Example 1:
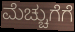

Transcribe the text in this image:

ಮೆಚ್ಚುಗೆಗೆ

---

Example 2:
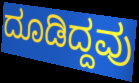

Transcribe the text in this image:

ದೂಡಿದ್ದವು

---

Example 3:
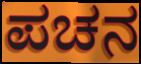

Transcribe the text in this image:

ಪಚನ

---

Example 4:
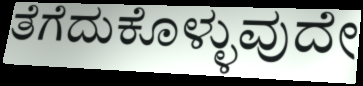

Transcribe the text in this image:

ತೆಗೆದುಕೊಳ್ಳುವುದೇ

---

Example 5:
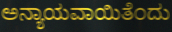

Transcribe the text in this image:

ಅನ್ಯಾಯವಾಯಿತೆಂದು